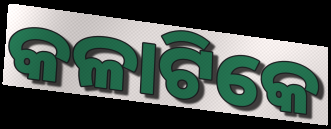
କଳାଟିକେ